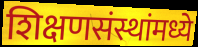
शिक्षणसंस्थांमध्ये